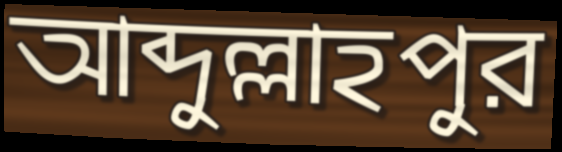
আব্দুল্লাহপুর